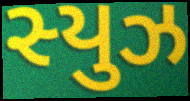
સ્યુઝ